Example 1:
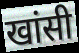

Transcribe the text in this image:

खांसी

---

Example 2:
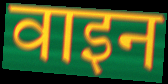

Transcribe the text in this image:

वाइन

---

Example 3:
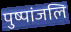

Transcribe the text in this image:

पुष्‍पांजलि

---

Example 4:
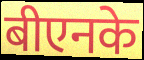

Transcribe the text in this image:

बीएनके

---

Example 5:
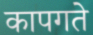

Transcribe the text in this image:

कापगते